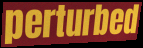
perturbed